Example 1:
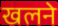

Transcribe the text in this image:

खलने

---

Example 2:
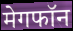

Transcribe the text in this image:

मेगफॉन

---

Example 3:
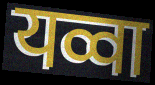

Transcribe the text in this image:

यव्वा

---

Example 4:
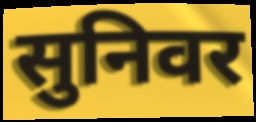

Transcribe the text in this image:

सुनिवर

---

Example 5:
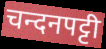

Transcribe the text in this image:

चन्दनपट्टी